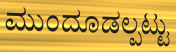
ಮುಂದೂಡಲ್ಪಟ್ಟು